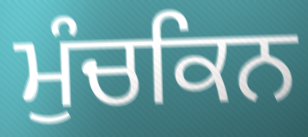
ਮੁੰਚਕਿਨ